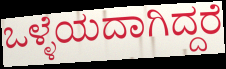
ಒಳ್ಳೆಯದಾಗಿದ್ದರೆ